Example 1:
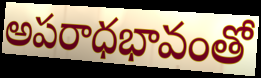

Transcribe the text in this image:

అపరాధభావంతో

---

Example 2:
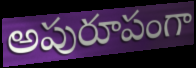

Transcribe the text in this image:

అపురూపంగా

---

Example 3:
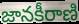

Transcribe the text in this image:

జానకీరాణి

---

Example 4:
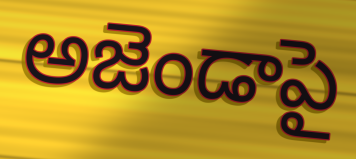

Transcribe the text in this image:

అజెండాపై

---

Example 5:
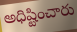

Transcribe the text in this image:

అధిష్టించారు